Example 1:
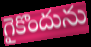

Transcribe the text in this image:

గైకొందును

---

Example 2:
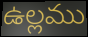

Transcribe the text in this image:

ఉల్లము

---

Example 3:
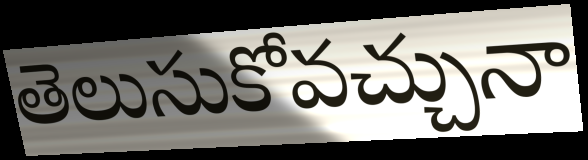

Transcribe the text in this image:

తెలుసుకోవచ్చునా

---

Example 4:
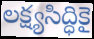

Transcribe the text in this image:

లక్ష్యసిద్ధికై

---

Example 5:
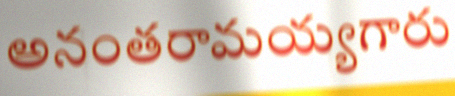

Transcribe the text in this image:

అనంతరామయ్యగారు